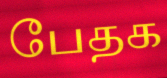
பேதக